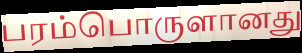
பரம்பொருளானது